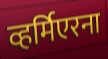
व्हर्मिएरना